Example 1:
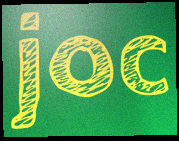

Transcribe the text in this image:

joc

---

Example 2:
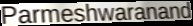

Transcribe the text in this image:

Parmeshwaranand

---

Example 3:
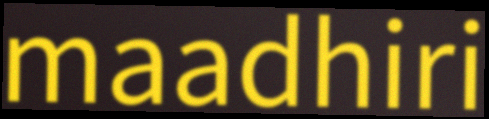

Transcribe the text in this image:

maadhiri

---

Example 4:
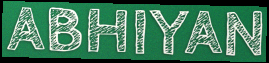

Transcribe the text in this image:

ABHIYAN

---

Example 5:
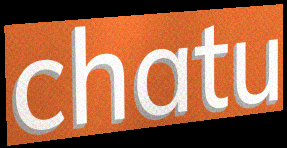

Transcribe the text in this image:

chatu